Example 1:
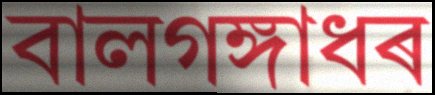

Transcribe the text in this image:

বালগঙ্গাধৰ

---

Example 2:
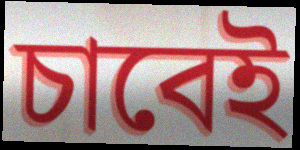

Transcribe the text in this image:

চাবেই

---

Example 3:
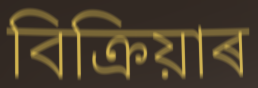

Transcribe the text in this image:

বিক্ৰিয়াৰ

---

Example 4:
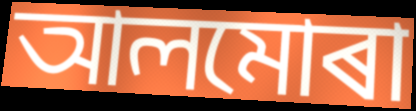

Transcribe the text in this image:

আলমোৰা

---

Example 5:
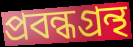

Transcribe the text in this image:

প্ৰবন্ধগ্ৰন্থ